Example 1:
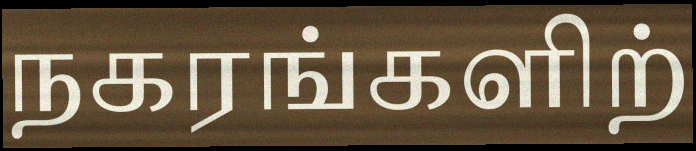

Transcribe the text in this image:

நகரங்களிற்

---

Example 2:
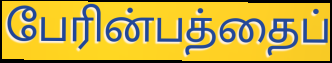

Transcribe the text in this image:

பேரின்பத்தைப்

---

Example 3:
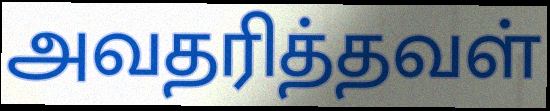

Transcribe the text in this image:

அவதரித்தவள்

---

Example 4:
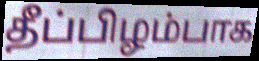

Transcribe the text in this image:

தீப்பிழம்பாக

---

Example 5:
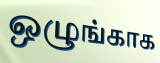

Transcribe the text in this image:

ஒழுங்காக